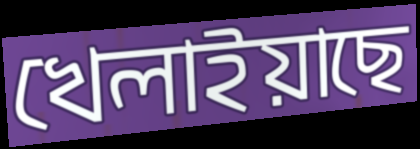
খেলাইয়াছে